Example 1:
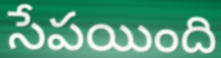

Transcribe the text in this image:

సేపయింది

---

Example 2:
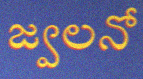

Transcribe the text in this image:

జ్వలనో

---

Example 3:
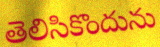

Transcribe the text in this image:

తెలిసికొందును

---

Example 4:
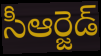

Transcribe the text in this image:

సీఆర్జెడ్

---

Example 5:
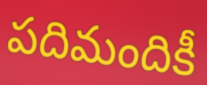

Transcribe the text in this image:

పదిమందికీ